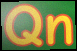
Qn